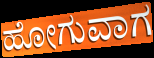
ಹೋಗುವಾಗ